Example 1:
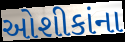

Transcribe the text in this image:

ઓશીકાંના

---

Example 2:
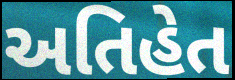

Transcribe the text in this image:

અતિહેત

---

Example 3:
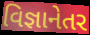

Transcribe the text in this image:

વિજ્ઞાનેતર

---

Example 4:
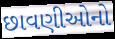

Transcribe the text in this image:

છાવણીઓનો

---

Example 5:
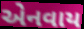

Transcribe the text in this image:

એનવાય